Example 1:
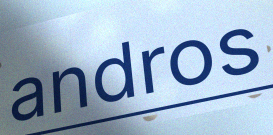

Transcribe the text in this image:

andros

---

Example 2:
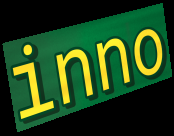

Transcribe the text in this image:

inno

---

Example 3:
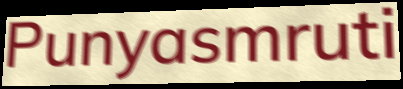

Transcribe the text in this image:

Punyasmruti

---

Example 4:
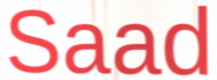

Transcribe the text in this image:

Saad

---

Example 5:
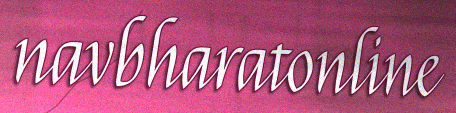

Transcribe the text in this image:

navbharatonline